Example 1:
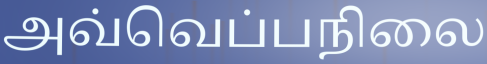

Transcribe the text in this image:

அவ்வெப்பநிலை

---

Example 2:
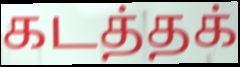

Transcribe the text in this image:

கடத்தக்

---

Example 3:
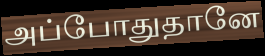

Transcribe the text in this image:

அப்போதுதானே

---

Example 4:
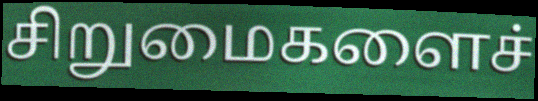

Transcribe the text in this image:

சிறுமைகளைச்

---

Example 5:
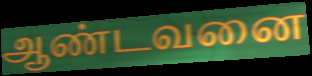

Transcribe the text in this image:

ஆண்டவனை